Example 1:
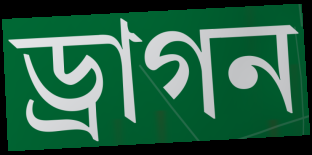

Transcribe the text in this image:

ড্রাগন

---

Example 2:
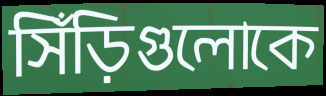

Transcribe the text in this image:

সিঁড়িগুলোকে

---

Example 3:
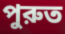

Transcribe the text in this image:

পুরুত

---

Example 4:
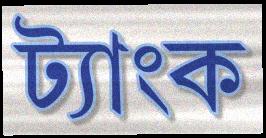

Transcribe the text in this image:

ট্যাংক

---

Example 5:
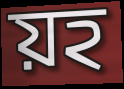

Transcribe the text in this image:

য়হ